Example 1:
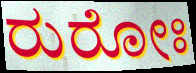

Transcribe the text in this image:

ರುರೋಃ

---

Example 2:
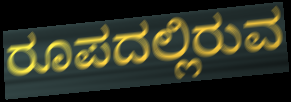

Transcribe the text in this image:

ರೂಪದಲ್ಲಿರುವ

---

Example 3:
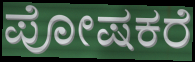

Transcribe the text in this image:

ಪೋಷಕರೆ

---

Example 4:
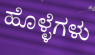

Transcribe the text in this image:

ಹೊಳ್ಳೆಗಳು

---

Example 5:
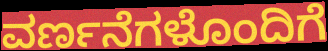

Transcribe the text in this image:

ವರ್ಣನೆಗಳೊಂದಿಗೆ